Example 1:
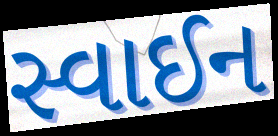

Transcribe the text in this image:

સ્વાઈન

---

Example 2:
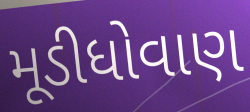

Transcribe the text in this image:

મૂડીધોવાણ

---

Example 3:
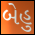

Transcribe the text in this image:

બેહુ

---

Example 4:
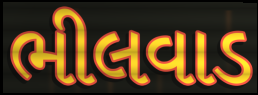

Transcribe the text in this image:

ભીલવાડ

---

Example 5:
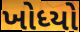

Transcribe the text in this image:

ખોધ્યો